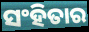
ସଂହିତାର